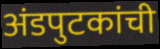
अंडपुटकांची